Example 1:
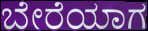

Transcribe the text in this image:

ಬೇರೆಯಾಗ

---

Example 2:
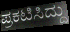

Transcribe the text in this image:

ಪ್ರಕಟಿಸಿದ್ದು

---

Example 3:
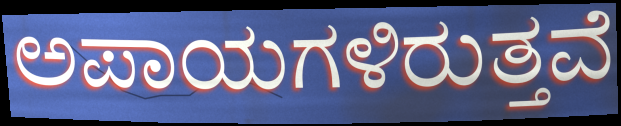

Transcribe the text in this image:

ಅಪಾಯಗಳಿರುತ್ತವೆ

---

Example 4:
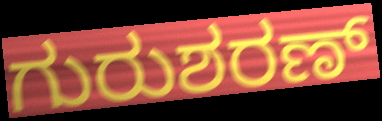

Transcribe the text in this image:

ಗುರುಶರಣ್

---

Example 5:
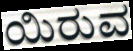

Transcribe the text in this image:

ಯಿರುವ